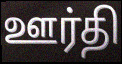
ஊர்தி